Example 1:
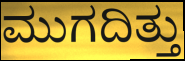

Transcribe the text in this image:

ಮುಗದಿತ್ತು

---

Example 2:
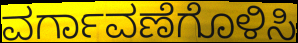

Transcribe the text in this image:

ವರ್ಗಾವಣೆಗೊಳಿಸಿ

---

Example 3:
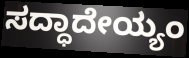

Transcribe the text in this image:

ಸದ್ಧಾದೇಯ್ಯಂ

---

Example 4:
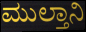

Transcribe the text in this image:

ಮುಲ್ತಾನಿ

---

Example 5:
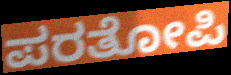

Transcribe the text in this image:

ಪರತೋಪಿ